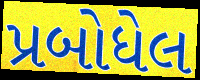
પ્રબોધેલ